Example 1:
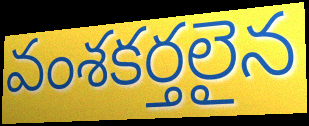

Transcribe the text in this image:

వంశకర్తలైన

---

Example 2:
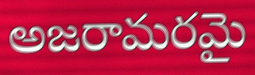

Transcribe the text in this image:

అజరామరమై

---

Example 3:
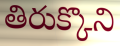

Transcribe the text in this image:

తిరుక్కొని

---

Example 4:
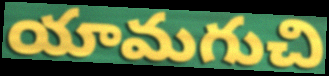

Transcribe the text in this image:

యామగుచి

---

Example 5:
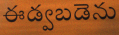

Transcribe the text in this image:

ఈడ్వబడెను